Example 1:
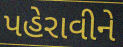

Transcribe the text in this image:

પહેરાવીને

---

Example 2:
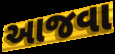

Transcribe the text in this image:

આજવા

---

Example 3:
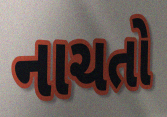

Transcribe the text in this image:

નાચતો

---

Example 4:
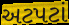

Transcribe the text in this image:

અટપટાં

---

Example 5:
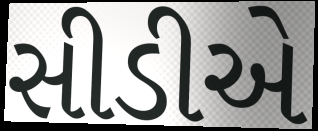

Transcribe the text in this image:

સીડીએ